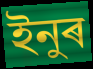
ইনুৰ